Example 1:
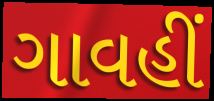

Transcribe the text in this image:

ગાવહીં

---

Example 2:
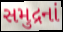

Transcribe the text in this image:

સમુદ્રનાં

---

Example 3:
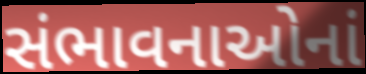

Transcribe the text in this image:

સંભાવનાઓનાં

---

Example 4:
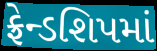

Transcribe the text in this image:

ફ્રેન્ડશિપમાં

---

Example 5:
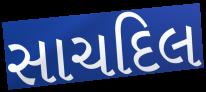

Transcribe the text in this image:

સાચદિલ